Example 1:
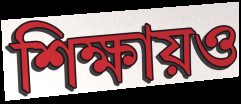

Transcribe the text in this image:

শিক্ষায়ও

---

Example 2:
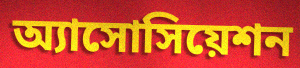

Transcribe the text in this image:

অ্যাসোসিয়েশন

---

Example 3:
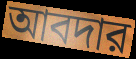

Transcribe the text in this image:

আবদার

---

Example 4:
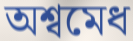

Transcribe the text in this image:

অশ্বমেধ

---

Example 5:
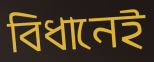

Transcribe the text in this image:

বিধানেই